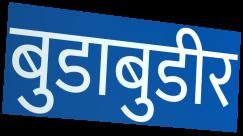
बुडाबुडीर